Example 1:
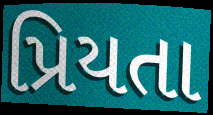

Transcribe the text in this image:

પ્રિયતા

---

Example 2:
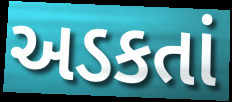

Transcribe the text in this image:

અડકતાં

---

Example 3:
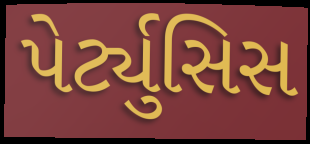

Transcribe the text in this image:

પેર્ટ્યુસિસ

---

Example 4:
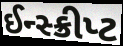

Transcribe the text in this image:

ઈન્સ્ક્રીપ્ટ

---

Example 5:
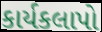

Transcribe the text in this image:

કાર્યકલાપો